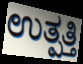
ಉತ್ಪತ್ತಿ